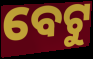
ବେଟୁ